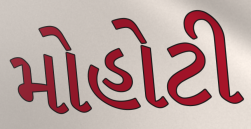
મોહોટી